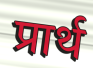
प्रार्थ